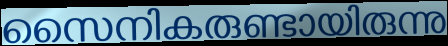
സൈനികരുണ്ടായിരുന്നു